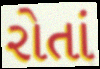
રોતાં